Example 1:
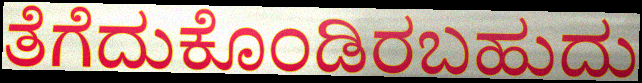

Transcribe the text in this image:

ತೆಗೆದುಕೊಂಡಿರಬಹುದು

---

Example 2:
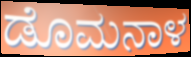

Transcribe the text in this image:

ಡೊಮನಾಳ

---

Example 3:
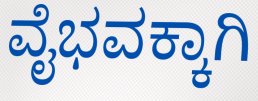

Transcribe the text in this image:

ವೈಭವಕ್ಕಾಗಿ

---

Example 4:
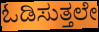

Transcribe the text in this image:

ಓಡಿಸುತ್ತಲೇ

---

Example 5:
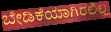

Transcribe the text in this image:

ಬೇಡಿಕೆಯಾಗಿರಲಿಲ್ಲ